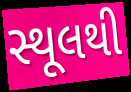
સ્થૂલથી